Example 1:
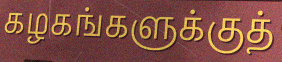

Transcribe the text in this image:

கழகங்களுக்குத்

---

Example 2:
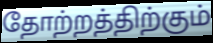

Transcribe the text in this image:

தோற்றத்திற்கும்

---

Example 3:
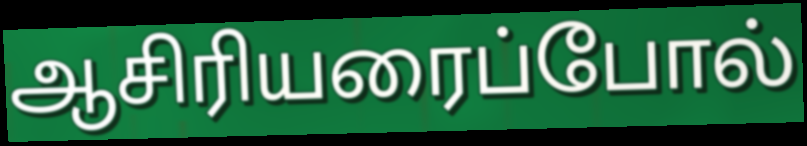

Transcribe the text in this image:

ஆசிரியரைப்போல்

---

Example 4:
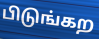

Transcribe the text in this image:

பிடுங்கற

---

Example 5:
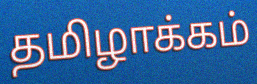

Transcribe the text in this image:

தமிழாக்கம்